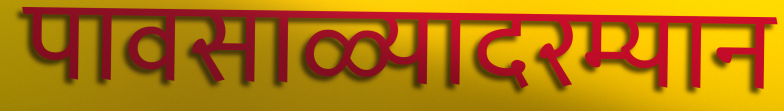
पावसाळ्यादरम्यान